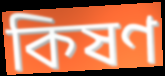
কিষণ